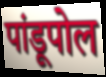
पांडूपोल